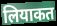
लियाकत